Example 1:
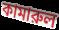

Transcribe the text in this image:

কামারুল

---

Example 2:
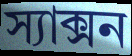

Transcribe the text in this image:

স্যাক্সন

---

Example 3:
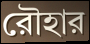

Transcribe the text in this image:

রৌহার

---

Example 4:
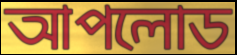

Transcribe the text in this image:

আপলোড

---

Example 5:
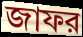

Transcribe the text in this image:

জাফর